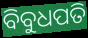
ବିବୁଧପତି